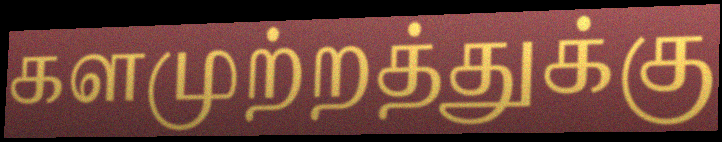
களமுற்றத்துக்கு